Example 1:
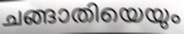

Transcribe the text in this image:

ചങ്ങാതിയെയും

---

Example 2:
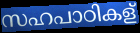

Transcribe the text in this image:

സഹപാഠികള്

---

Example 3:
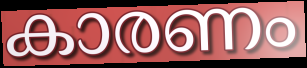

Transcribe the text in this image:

കാരണം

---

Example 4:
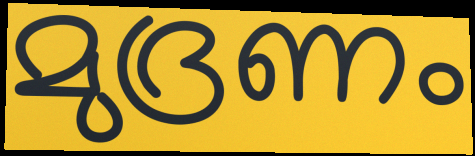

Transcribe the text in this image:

മുദ്രണം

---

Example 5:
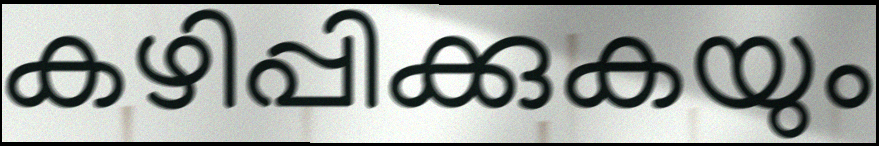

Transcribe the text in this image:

കഴിപ്പിക്കുകയും